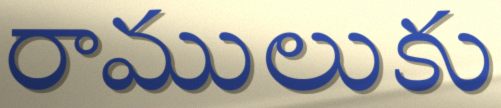
రాములుకు